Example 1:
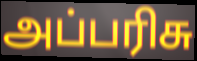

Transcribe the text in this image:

அப்பரிசு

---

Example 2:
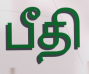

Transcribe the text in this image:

பீதி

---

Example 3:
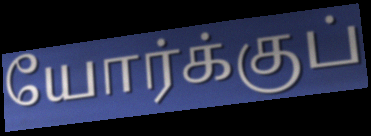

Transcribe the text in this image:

யோர்க்குப்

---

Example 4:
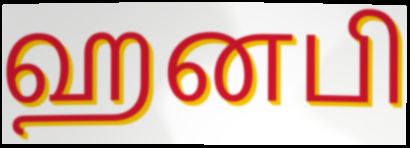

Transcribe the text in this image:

ஹனபி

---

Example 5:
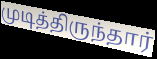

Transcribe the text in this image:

முடித்திருந்தார்